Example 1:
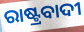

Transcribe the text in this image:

ରାଷ୍ଟ୍ରବାଦୀ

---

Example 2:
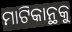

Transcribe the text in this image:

ମାଟିକାନ୍ଥକୁ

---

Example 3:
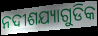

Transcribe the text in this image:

ନଦୀଶଯ୍ୟାଗୁଡିକ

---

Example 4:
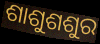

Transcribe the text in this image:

ଶାଶୁଶଶୁର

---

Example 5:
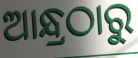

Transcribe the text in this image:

ଆନ୍ଧ୍ରଠାରୁ